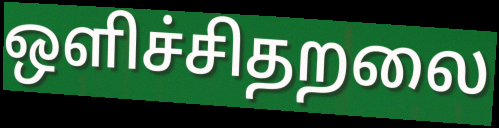
ஒளிச்சிதறலை